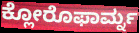
ಕ್ಲೋರೊಫಾರ್ಮ್ನ